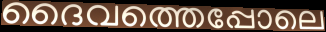
ദൈവത്തെപ്പോലെ